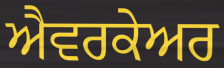
ਐਵਰਕੇਅਰ